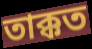
তাক্কত